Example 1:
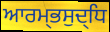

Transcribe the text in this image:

ਆਰਮ੍ਭਸੁਦ੍ਧਿ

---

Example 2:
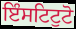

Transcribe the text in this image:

ਇੰਸਟਿਟੁਟੋ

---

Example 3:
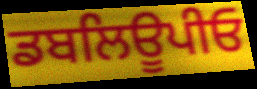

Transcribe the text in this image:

ਡਬਲਿਊਪੀਓ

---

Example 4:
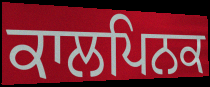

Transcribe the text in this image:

ਕਾਲਪਿਨਕ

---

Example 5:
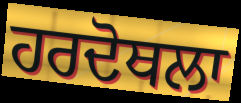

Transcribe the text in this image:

ਹਰਦੋਥਲਾ